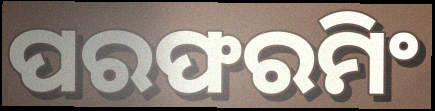
ପରଫରମିଂ